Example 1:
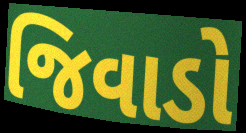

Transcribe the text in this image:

જિવાડો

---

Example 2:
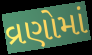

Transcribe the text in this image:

વ્રણોમાં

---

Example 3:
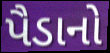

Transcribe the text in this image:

પૈડાનો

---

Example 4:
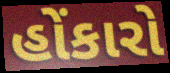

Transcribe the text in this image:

હોંકારો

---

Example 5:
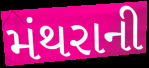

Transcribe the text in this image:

મંથરાની